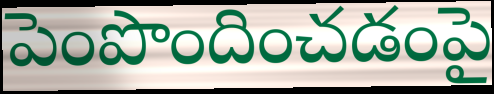
పెంపొందించడంపై